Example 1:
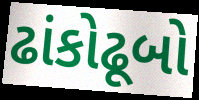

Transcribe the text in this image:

ઢાંકોઢૂબો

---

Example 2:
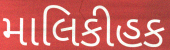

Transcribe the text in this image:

માલિકીહક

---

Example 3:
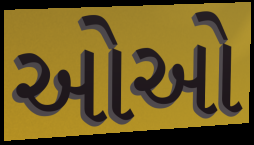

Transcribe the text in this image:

ઓઓ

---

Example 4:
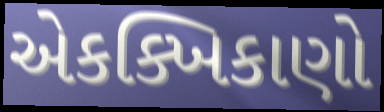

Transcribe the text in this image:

એકક્ખિકાણો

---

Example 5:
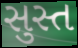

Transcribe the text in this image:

સુસ્ત